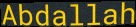
Abdallah